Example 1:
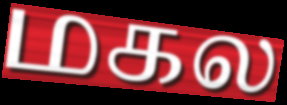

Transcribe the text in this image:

மகல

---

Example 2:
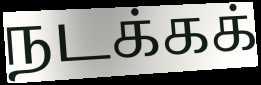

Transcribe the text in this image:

நடக்கக்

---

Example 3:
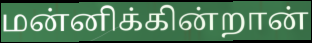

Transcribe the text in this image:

மன்னிக்கின்றான்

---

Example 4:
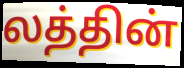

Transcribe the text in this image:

லத்தின்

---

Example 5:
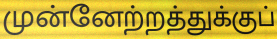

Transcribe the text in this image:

முன்னேற்றத்துக்குப்